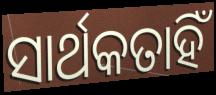
ସାର୍ଥକତାହିଁ